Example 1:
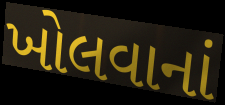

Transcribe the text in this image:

ખોલવાનાં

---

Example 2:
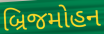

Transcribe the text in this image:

બ્રિજમોહન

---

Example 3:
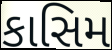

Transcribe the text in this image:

કાસિમ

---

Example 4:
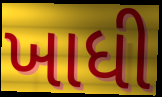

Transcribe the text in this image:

ખાધી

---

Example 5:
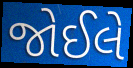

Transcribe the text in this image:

જોઈલે